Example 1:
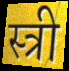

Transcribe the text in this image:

स्त्री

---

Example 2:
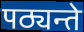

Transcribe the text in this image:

पठ्यन्ते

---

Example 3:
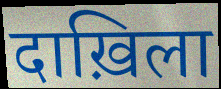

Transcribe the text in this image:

दाख़िला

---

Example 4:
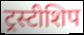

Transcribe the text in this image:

ट्रस्टीशिप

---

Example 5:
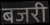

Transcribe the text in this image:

बजरी